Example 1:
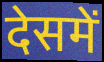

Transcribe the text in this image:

देसमें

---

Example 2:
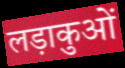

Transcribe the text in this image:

लड़ाकुओं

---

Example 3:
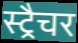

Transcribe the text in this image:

स्ट्रैचर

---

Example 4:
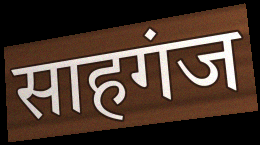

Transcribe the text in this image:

साहगंज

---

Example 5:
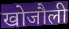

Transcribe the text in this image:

खोजौली